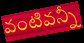
వంటివన్నీ